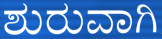
ಶುರುವಾಗಿ